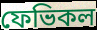
ফেভিকল